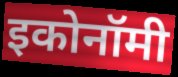
इकोनॉमी